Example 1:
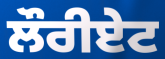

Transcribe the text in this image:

ਲੌਰੀਏਟ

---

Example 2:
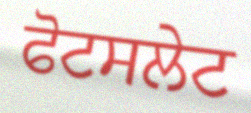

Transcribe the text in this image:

ਫੋਟਸਲੇਟ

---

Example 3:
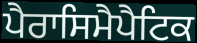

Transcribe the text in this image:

ਪੈਰਾਸਿਮੈਪੈਟਿਕ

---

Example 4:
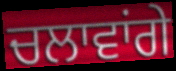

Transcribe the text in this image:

ਚਲਾਵਾਂਗੇ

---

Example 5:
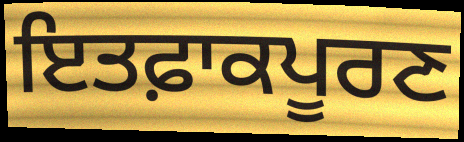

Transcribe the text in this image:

ਇਤਫ਼ਾਕਪੂਰਣ